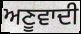
ਅਣੂਵਾਦੀ